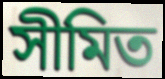
সীমিত